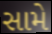
સામે